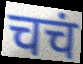
चचं